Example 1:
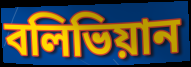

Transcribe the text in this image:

বলিভিয়ান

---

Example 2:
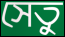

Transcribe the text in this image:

সেতু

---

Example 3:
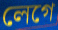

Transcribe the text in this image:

লেগে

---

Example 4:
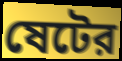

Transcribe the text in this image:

ষেটের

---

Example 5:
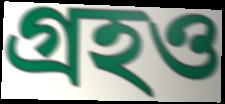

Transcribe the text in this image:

গ্রহও